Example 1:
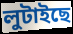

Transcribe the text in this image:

লুটাইছে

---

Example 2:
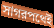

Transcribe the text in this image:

সাগরপথেই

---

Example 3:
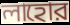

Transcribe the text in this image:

লাহোর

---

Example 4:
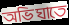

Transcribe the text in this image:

অভিঘাতে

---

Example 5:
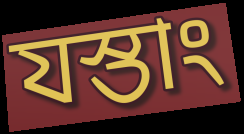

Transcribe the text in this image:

যস্তাং